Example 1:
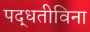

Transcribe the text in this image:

पद्धतीविना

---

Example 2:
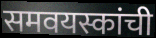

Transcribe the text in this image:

समवयस्कांची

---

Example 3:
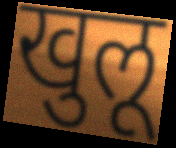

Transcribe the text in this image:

खुलू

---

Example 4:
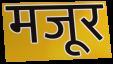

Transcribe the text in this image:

मजूर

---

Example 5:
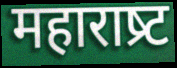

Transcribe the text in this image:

महाराष्र्ट